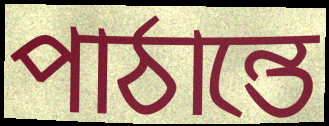
পাঠান্তে